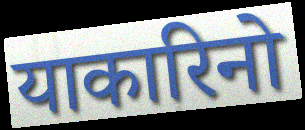
याकारिनो